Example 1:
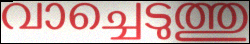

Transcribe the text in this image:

വാച്ചെടുത്തു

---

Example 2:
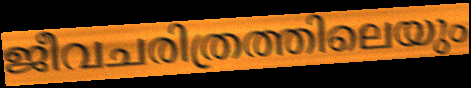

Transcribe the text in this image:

ജീവചരിത്രത്തിലെയും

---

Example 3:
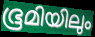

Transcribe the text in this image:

ഭൂമിയിലും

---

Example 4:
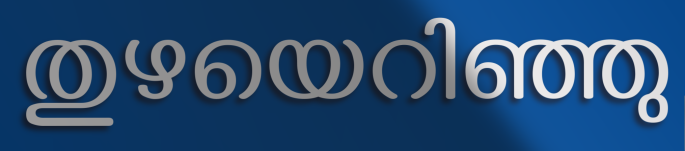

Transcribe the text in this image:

തുഴയെറിഞ്ഞു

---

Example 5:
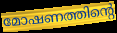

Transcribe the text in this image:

മോഷണത്തിന്റെ